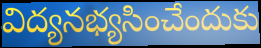
విద్యనభ్యసించేందుకు